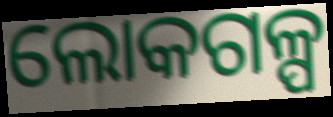
ଲୋକଗଳ୍ପ